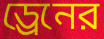
ড্রেনের